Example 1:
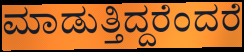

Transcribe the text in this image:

ಮಾಡುತ್ತಿದ್ದರೆಂದರೆ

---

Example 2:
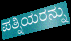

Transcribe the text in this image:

ಪತ್ನಿಯರನ್ನು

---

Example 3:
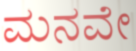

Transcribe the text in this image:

ಮನವೇ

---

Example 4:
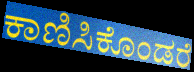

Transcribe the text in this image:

ಕಾಣಿಸಿಕೊಂಡರೆ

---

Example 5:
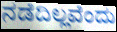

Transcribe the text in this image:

ನಡೆದಿಲ್ಲವೆಂದು